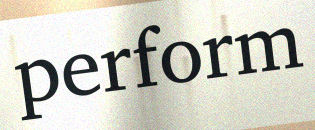
perform